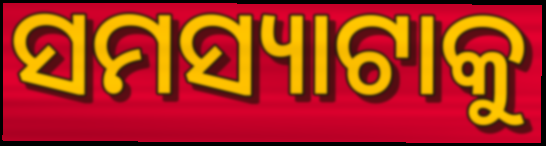
ସମସ୍ୟାଟାକୁ